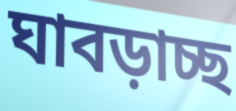
ঘাবড়াচ্ছ